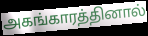
அகங்காரத்தினால்